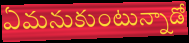
ఏమనుకుంటున్నాడో